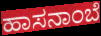
ಹಾಸನಾಂಬೆ